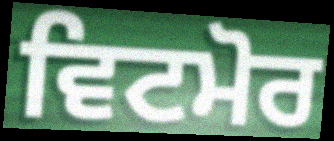
ਵਿਟਮੋਰ